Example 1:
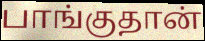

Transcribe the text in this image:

பாங்குதான்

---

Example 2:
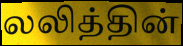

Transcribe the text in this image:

லலித்தின்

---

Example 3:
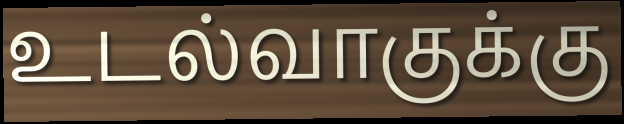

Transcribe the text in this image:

உடல்வாகுக்கு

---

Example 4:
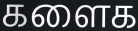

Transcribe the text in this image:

களைக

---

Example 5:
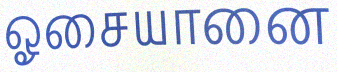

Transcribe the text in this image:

ஓசையானை